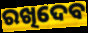
ରଖିଦେବ